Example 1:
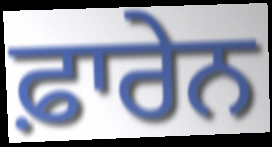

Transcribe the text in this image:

ਫ਼ਾਰੇਨ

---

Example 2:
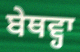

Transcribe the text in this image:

ਬੇਥਵ੍ਹਾ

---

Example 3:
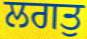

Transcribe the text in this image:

ਲਗਤੁ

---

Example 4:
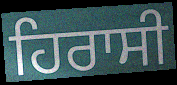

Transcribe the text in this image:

ਹਿਰਾਸੀ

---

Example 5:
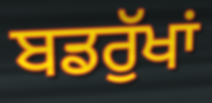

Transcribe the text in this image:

ਬਡਰੁੱਖਾਂ